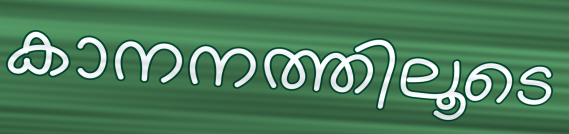
കാനനത്തിലൂടെ